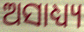
ଅସାଧ୍ୟ୍ୟ